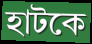
হাটকে